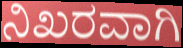
ನಿಖರವಾಗಿ